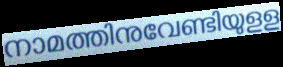
നാമത്തിനുവേണ്ടിയുളള